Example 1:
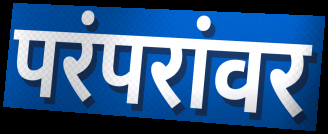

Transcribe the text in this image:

परंपरांवर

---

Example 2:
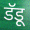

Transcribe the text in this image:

डॅडू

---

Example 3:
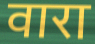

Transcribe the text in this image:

वारा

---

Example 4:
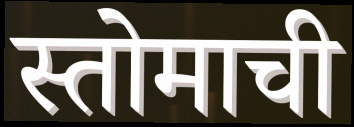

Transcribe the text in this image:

स्तोमाची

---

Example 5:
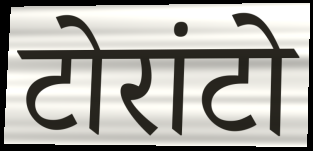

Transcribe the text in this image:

टोरांटो